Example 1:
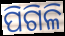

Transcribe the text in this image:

ପିଗିଳି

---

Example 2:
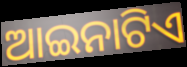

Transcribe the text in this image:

ଆଇନାଟିଏ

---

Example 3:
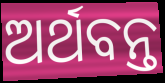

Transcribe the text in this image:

ଅର୍ଥବନ୍ତ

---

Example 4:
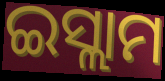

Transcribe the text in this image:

ଇସ୍ଲାମ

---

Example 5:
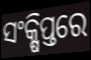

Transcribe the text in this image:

ସଂକ୍ଷିପ୍ତରେ